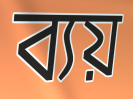
ব্যয়